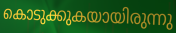
കൊടുക്കുകയായിരുന്നു